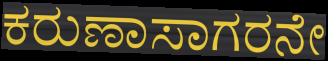
ಕರುಣಾಸಾಗರನೇ